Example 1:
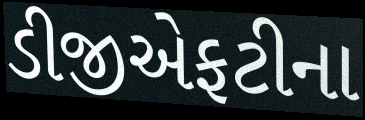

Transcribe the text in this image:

ડીજીએફટીના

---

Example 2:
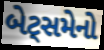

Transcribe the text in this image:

બેટ્સમેનો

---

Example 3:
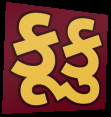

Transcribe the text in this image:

કૂકુ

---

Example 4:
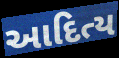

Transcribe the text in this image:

આદિત્ય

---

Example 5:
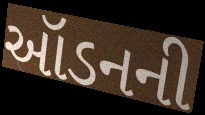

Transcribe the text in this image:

ઑડનની